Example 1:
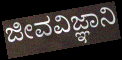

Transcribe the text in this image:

ಜೀವವಿಜ್ಞಾನಿ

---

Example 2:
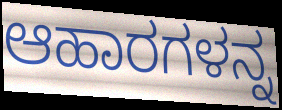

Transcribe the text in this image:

ಆಹಾರಗಳನ್ನ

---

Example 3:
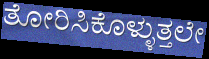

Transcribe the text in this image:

ತೋರಿಸಿಕೊಳ್ಳುತ್ತಲೇ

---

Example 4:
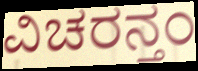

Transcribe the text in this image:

ವಿಚರನ್ತಂ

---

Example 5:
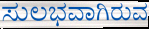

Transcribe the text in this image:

ಸುಲಭವಾಗಿರುವ